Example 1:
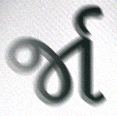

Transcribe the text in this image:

ર્જા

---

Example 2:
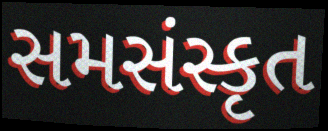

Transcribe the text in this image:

સમસંસ્કૃત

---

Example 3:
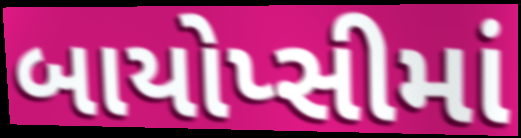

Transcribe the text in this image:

બાયોપ્સીમાં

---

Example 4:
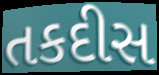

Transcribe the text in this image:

તકદીસ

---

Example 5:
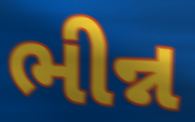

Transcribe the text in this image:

ભીન્ન